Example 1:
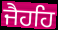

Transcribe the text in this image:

ਜੈਹਹਿ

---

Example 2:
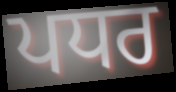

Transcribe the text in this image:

ਪਧਰ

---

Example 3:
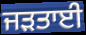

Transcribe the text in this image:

ਜੜਤਾਈ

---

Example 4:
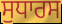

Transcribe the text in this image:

ਸੁਧਾਰਸ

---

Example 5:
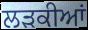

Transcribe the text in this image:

ਲੜਕੀਆਂ